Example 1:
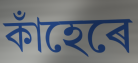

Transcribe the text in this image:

কাঁহেৰে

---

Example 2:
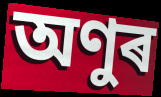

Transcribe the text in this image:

অণুৰ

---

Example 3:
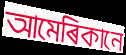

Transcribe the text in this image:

আমেৰিকানে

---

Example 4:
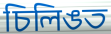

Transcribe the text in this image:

চিলিঙত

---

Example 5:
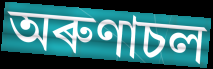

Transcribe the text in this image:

অৰুণাচল